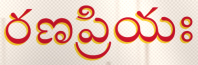
రణప్రియః